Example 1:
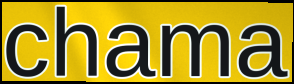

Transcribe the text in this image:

chama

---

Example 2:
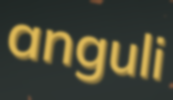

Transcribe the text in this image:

anguli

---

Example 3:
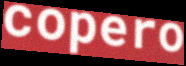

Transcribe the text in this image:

copero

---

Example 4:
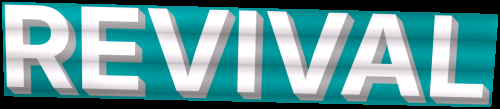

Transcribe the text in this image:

REVIVAL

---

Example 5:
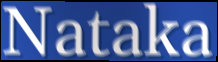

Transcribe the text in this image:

Nataka